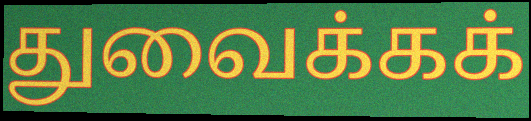
துவைக்கக்